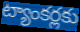
ట్యాంకర్లకు